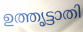
ഉത്തൃട്ടാതി